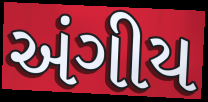
અંગીય